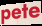
pete